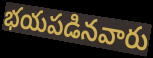
భయపడినవారు